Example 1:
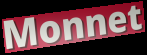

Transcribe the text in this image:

Monnet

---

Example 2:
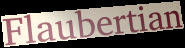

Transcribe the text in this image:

Flaubertian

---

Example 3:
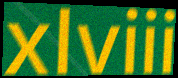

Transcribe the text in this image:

xlviii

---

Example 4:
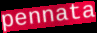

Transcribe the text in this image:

pennata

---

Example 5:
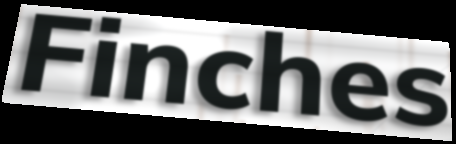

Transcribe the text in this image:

Finches